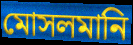
মোসলমানি